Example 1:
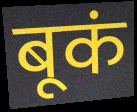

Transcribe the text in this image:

बूकं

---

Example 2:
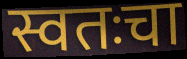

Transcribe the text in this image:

स्वतःचा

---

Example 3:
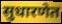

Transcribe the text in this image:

सुधारणेत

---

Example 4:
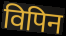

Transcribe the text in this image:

विपिन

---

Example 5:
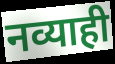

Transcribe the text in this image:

नव्याही